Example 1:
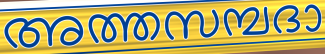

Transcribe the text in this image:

അത്തസമ്പദാ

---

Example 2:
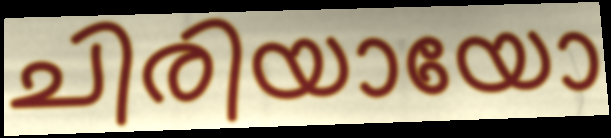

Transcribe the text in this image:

ചിരിയായോ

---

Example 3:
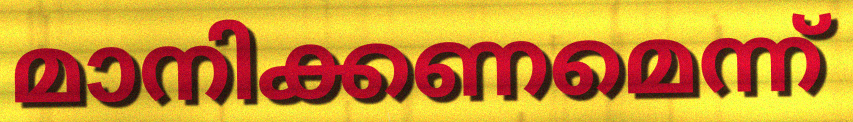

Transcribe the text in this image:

മാനിക്കണമെന്ന്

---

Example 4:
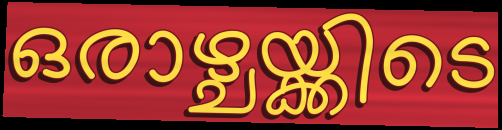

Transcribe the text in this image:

ഒരാഴ്ചയ്ക്കിടെ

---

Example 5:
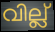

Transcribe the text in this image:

വില്ല്